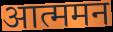
आत्ममन